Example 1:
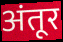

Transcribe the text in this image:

अंतूर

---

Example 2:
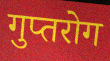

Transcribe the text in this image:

गुप्तरोग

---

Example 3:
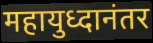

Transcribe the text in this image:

महायुध्दानंतर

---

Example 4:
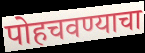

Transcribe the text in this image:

पोहचवण्याचा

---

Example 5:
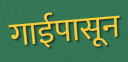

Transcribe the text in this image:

गाईपासून